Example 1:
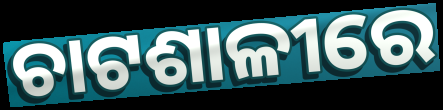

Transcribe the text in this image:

ଚାଟଶାଳୀରେ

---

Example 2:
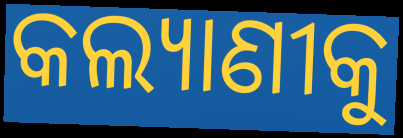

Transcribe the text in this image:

କଲ୍ୟାଣୀକୁ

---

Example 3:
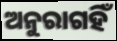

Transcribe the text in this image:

ଅନୁରାଗହିଁ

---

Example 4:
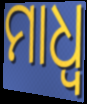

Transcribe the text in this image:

ମାଧ୍ଵ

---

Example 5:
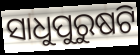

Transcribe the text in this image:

ସାଧୁପୁରୁଷଟି